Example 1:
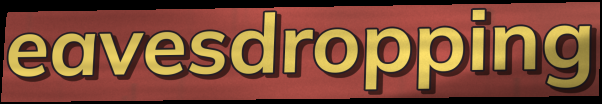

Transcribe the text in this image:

eavesdropping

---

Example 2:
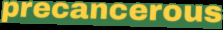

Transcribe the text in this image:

precancerous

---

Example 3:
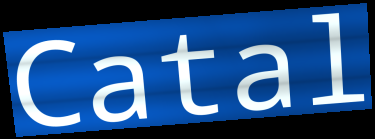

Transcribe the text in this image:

Catal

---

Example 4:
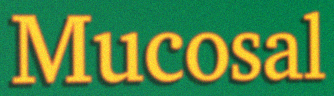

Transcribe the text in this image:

Mucosal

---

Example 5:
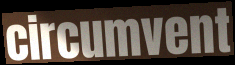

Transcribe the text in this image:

circumvent